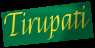
Tirupati